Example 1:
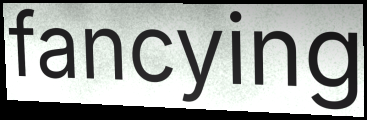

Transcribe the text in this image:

fancying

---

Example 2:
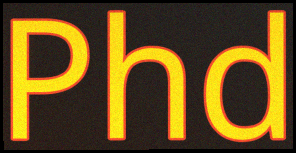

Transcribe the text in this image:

Phd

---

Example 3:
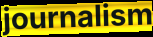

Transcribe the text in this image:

journalism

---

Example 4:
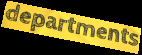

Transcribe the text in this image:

departments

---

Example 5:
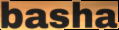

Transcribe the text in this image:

basha